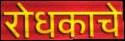
रोधकाचे